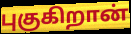
புகுகிறான்